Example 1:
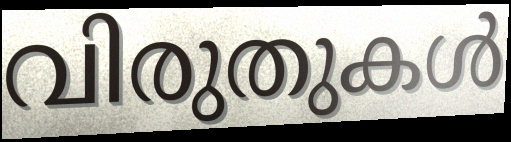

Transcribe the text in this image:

വിരുതുകൾ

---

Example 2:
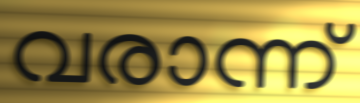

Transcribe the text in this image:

വരാന്ന്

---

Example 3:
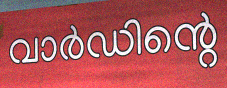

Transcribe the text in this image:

വാർഡിന്റെ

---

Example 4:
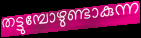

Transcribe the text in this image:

തട്ടുമ്പോഴുണ്ടാകുന്ന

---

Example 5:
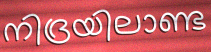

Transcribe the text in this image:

നിദ്രയിലാണ്ട